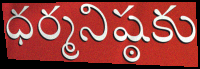
ధర్మనిష్ఠకు